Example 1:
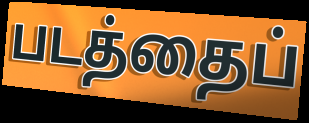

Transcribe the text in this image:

படத்தைப்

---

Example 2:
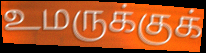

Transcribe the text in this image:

உமருக்குக்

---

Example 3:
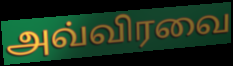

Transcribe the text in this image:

அவ்விரவை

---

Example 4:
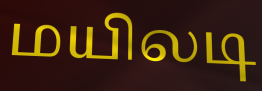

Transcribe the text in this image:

மயிலடி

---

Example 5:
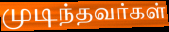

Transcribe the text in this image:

முடிந்தவர்கள்